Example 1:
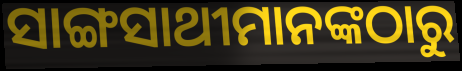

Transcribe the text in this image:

ସାଙ୍ଗସାଥୀମାନଙ୍କଠାରୁ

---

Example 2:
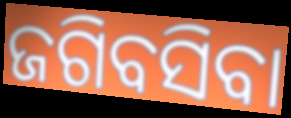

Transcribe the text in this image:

ଜଗିବସିବା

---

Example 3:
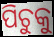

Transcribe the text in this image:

ପିଚୁକୁ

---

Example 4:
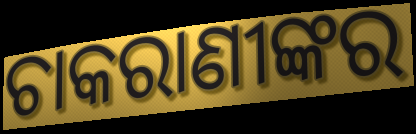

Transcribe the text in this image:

ଚାକରାଣୀଙ୍କର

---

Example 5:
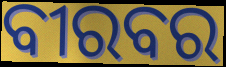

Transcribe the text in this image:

ବୀରବର